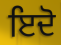
ਇਦੋ